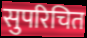
सुपरिचित